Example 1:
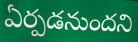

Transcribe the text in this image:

ఏర్పడనుందని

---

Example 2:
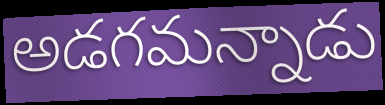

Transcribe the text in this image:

అడగమన్నాడు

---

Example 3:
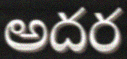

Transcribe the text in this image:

అదర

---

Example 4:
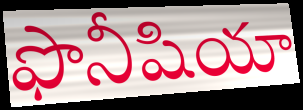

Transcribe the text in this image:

ఫొనీషియా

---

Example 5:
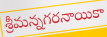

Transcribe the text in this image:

శ్రీమన్నగరనాయికా